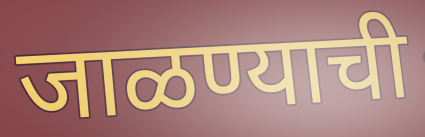
जाळण्याची